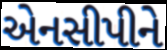
એનસીપીને